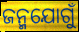
ଜନ୍ମଯୋଗୁଁ